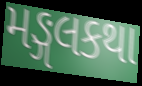
મઙ્ગલકથા